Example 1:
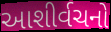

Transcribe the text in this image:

આશીર્વચનો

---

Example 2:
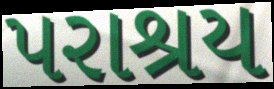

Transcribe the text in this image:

પરાશ્રય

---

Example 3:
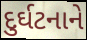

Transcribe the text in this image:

દુર્ઘટનાને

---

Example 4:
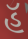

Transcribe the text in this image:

હૅ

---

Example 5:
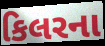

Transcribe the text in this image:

કિલરના